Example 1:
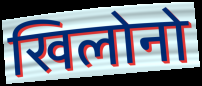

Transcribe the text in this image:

खिलोनो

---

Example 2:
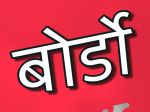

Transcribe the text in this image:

बोर्डो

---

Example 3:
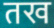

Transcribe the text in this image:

तख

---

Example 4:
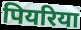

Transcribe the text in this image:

पियरिया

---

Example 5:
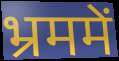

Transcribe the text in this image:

भ्रममें